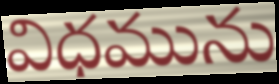
విధమును